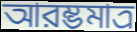
আরম্ভমাত্র